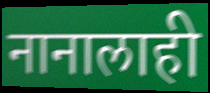
नानालाही